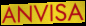
ANVISA